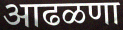
आढळणा